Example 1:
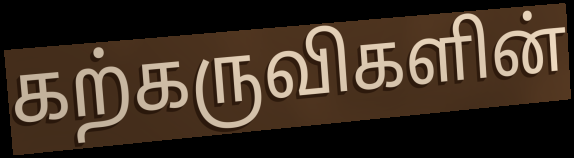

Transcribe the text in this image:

கற்கருவிகளின்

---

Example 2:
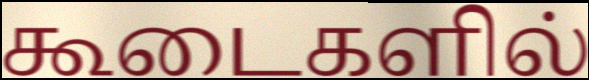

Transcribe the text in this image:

கூடைகளில்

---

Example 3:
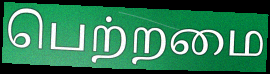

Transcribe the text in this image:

பெற்றமை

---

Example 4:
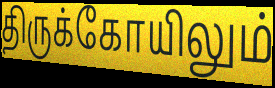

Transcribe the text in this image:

திருக்கோயிலும்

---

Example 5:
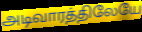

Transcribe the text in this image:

அடிவாரத்திலேயே